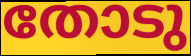
തോടു